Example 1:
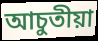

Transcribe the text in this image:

আচুতীয়া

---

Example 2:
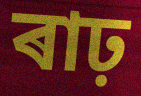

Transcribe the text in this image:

ৰাঢ়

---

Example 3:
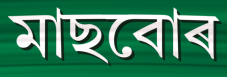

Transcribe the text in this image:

মাছবোৰ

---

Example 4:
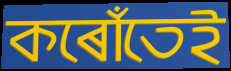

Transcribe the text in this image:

কৰোঁতেই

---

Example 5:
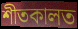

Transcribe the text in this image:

শীতকালত